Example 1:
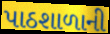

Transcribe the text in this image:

પાઠશાળાની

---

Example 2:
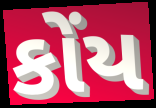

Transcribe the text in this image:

કોંય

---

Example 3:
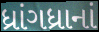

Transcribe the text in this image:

ધ્રાંગધ્રાનાં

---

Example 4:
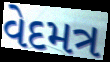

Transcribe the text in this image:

વેદમત્ર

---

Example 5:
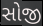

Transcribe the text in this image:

સોજી